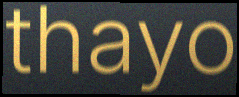
thayo